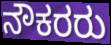
ನೌಕರರು